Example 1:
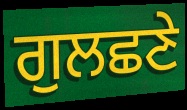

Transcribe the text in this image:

ਗੁਲਛਣੇ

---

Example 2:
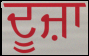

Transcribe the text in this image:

ਦੂਜ਼ਾ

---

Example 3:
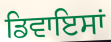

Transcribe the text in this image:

ਡਿਵਾਇਸਾਂ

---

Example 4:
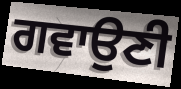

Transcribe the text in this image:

ਗਵਾਉਣੀ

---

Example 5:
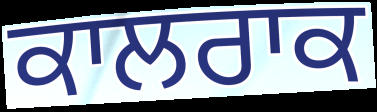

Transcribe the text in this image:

ਕਾਲਰਾਕ